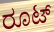
ರೂಟ್